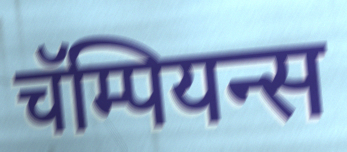
चॅम्पियन्स